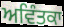
ਅਵਿੰਤਕਾ